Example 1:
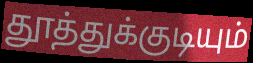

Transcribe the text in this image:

தூத்துக்குடியும்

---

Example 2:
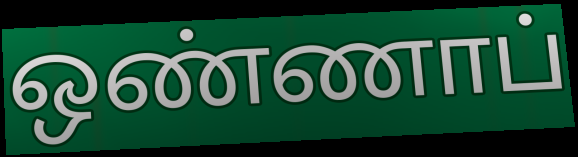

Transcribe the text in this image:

ஒண்ணாப்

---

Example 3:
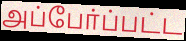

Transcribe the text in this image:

அப்பேர்ப்பட்ட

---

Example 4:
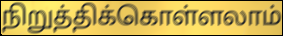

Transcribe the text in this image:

நிறுத்திக்கொள்ளலாம்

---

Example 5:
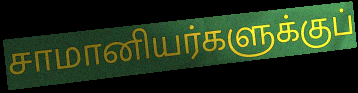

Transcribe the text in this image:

சாமானியர்களுக்குப்